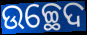
ଉଚ୍ଛେଦ